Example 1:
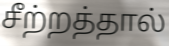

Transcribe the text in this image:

சீற்றத்தால்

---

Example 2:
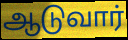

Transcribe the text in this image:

ஆடுவார்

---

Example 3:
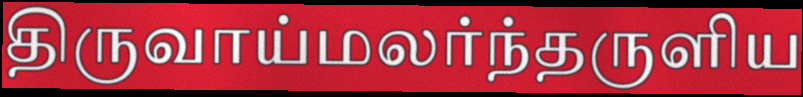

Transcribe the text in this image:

திருவாய்மலர்ந்தருளிய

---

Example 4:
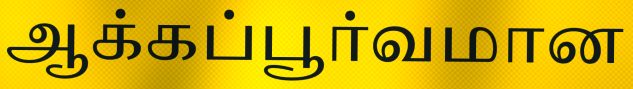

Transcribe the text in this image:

ஆக்கப்பூர்வமான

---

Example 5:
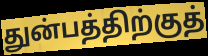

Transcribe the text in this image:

துன்பத்திற்குத்